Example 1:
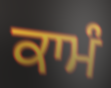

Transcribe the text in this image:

ਕਾਮੰ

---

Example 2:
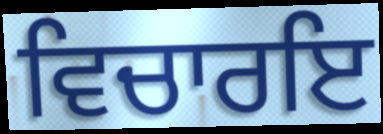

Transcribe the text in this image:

ਵਿਚਾਰਇ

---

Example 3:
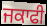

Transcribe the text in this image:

ਜਕਾਫੀ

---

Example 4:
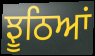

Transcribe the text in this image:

ਝੂਠਿਆਂ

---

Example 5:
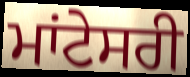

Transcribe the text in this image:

ਮਾਂਟੇਸਰੀ